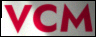
VCM